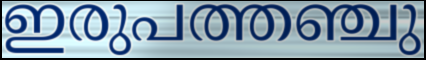
ഇരുപത്തഞ്ചു